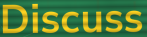
Discuss